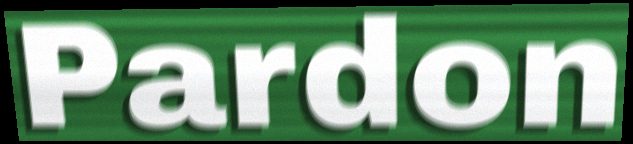
Pardon